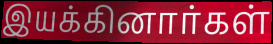
இயக்கினார்கள்